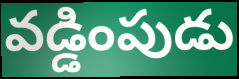
వడ్డింపుడు